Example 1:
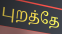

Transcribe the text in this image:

புறத்தே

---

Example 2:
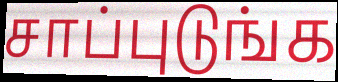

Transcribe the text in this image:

சாப்புடுங்க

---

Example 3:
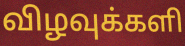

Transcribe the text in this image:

விழவுக்களி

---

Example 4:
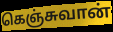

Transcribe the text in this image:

கெஞ்சுவான்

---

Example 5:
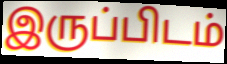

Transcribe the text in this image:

இருப்பிடம்